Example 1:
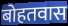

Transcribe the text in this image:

बोहतवास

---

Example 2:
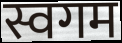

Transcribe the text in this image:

स्वगम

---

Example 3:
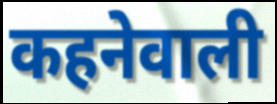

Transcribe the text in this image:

कहनेवाली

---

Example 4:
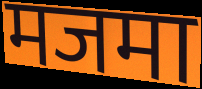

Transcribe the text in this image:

मजमा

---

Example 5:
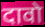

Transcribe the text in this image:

दावो